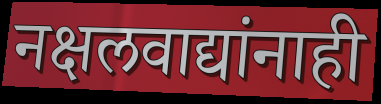
नक्षलवाद्यांनाही